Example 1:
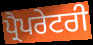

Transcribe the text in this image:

ਪ੍ਰੈਪਰੇਟਰੀ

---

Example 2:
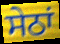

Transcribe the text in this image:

ਸੇਠਾਂ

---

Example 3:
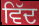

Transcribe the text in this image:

ਵਿੱਦ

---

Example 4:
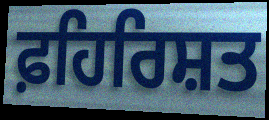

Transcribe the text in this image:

ਫ਼ਹਿਰਿਸ਼ਤ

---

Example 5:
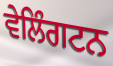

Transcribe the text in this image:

ਵੇਲਿੰਗਟਨ